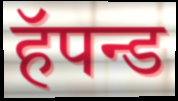
हॅपन्ड